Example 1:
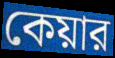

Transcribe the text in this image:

কেয়ার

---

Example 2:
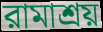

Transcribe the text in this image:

রামাশ্রয়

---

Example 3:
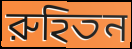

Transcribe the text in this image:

রুহিতন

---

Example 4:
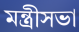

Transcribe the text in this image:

মন্ত্রীসভা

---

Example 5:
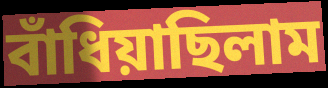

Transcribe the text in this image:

বাঁধিয়াছিলাম